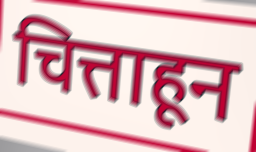
चित्ताहून